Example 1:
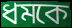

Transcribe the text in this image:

ধমকে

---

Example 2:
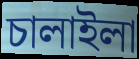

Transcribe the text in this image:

চালাইলা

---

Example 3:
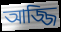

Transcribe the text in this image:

আজ্জি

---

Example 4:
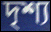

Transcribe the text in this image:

দৃশ্য়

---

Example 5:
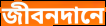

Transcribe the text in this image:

জীবনদানে